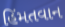
હિંમતવાન